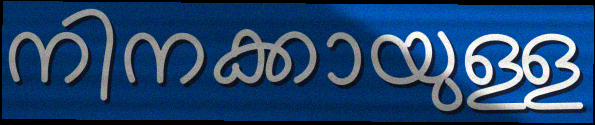
നിനക്കായുള്ള